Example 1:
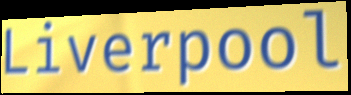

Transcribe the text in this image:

Liverpool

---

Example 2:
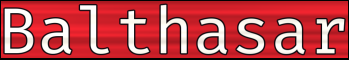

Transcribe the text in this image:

Balthasar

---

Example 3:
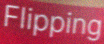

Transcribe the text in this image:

Flipping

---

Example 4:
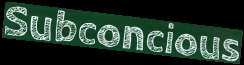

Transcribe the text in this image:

Subconcious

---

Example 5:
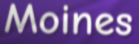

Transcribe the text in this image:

Moines